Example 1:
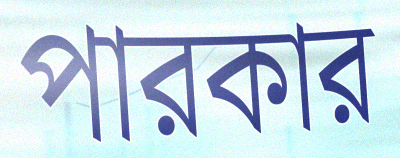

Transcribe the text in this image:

পারকার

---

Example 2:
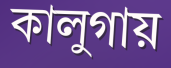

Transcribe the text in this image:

কালুগায়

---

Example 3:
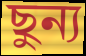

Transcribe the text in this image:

ছুন্য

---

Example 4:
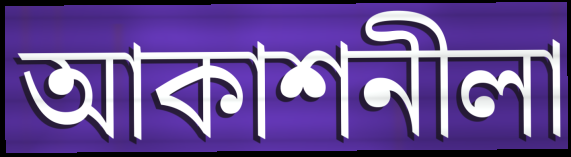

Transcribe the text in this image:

আকাশনীলা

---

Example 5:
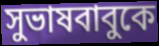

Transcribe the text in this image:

সুভাষবাবুকে